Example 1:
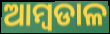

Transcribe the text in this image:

ଆମ୍ବଡାଳ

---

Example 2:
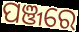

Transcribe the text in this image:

ପଞ୍ଜରେ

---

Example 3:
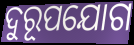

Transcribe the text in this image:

ଦୁରୂପଯୋଗ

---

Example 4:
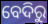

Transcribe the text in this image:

ବେଦିରୁ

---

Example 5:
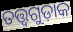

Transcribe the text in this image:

ତତ୍ତ୍ୱଗୁଡ଼ାକ